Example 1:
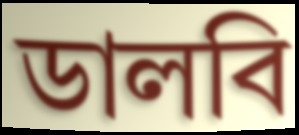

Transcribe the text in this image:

ডালবি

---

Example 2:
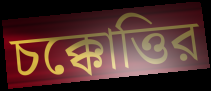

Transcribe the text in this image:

চক্কোত্তির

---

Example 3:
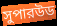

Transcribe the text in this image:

সুপারউড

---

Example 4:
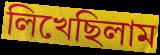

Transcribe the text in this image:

লিখেছিলাম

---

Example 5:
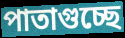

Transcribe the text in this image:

পাতাগুচ্ছে